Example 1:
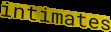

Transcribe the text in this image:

intimates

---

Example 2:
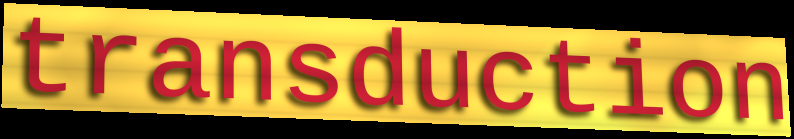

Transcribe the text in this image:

transduction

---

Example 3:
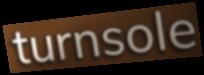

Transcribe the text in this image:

turnsole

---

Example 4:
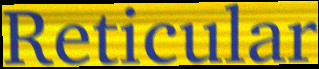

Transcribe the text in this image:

Reticular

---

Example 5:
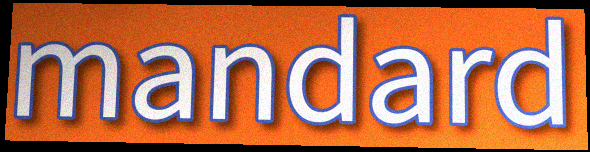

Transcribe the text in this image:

mandard